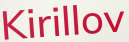
Kirillov